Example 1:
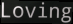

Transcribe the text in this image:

Loving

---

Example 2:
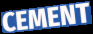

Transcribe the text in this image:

CEMENT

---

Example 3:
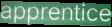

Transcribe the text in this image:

apprentice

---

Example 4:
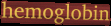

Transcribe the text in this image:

hemoglobin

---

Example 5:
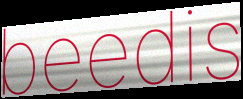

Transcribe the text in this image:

beedis